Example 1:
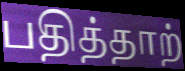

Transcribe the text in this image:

பதித்தாற்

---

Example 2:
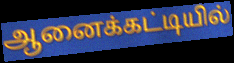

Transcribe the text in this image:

ஆனைக்கட்டியில்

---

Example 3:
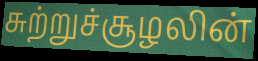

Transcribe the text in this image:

சுற்றுச்சூழலின்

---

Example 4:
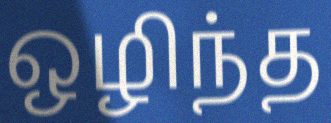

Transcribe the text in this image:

ஒழிந்த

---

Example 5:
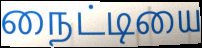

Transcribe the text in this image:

நைட்டியை